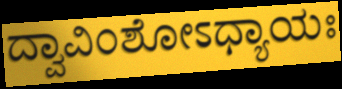
ದ್ವಾವಿಂಶೋಽಧ್ಯಾಯಃ